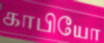
காபியோ